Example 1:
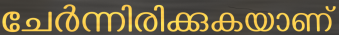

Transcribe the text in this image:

ചേർന്നിരിക്കുകയാണ്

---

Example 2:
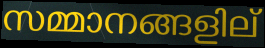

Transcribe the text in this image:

സമ്മാനങ്ങളില്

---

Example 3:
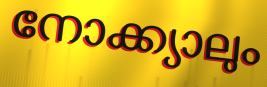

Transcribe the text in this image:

നോക്ക്യാലും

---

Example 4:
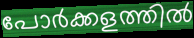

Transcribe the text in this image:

പോർക്കളത്തിൽ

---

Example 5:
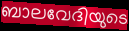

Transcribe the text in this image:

ബാലവേദിയുടെ